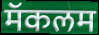
मॅकलम